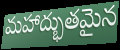
మహాద్భుతమైన